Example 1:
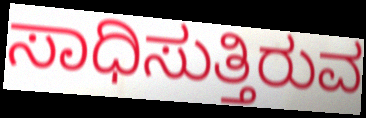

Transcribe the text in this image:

ಸಾಧಿಸುತ್ತಿರುವ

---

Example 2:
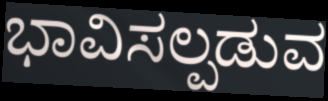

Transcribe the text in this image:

ಭಾವಿಸಲ್ಪಡುವ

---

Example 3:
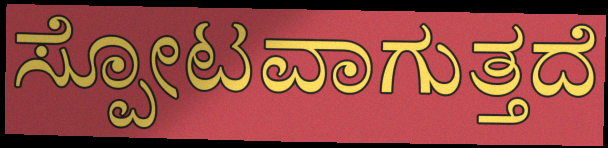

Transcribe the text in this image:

ಸ್ಪೋಟವಾಗುತ್ತದೆ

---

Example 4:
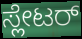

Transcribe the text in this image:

ಸ್ಲೇಟರ್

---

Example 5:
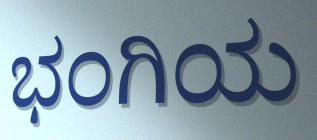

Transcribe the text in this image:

ಭಂಗಿಯ